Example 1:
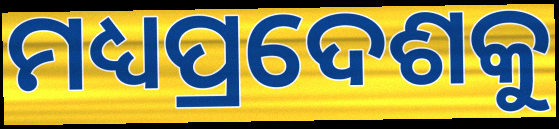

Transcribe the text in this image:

ମଧ୍ୟପ୍ରଦେଶକୁ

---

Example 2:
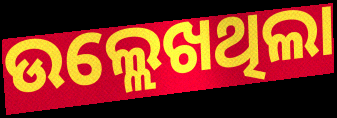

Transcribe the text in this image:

ଉଲ୍ଲେଖଥିଲା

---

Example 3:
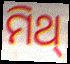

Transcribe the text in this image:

ମିଥ୍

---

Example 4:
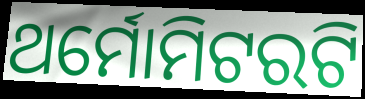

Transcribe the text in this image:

ଥର୍ମୋମିଟରଟି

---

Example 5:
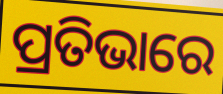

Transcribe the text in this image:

ପ୍ରତିଭାରେ